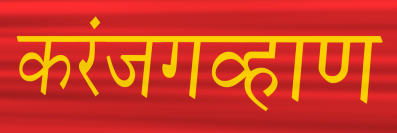
करंजगव्हाण